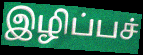
இழிப்பச்